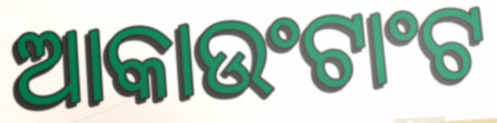
ଆକାଉଂଟାଂଟ